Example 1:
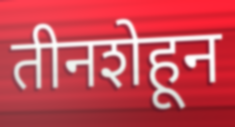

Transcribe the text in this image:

तीनशेहून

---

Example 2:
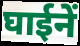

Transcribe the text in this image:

घाईनें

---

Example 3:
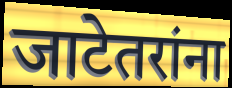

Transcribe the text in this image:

जाटेतरांना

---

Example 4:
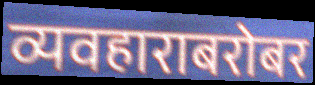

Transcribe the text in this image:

व्यवहाराबरोबर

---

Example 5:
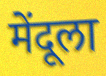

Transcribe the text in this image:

मेंदूला